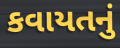
કવાયતનું